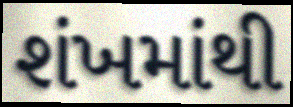
શંખમાંથી